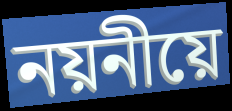
নয়নীয়ে